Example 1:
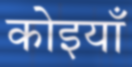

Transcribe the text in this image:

कोइयाँ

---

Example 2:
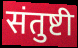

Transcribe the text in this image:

संतुष्टी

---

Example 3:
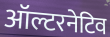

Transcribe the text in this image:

ऑल्टरनेटिव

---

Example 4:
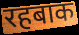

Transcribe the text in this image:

रहबाक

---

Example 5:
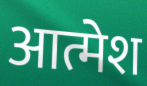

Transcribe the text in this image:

आत्मेश